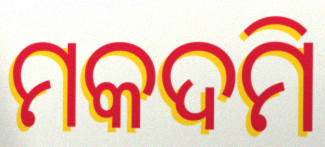
ମକଦମି